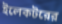
ইলেকটরের